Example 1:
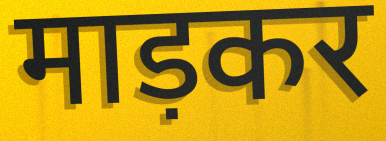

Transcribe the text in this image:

माड़कर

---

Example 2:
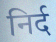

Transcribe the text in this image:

निर्द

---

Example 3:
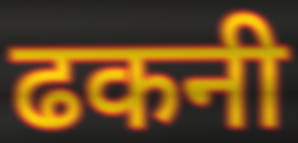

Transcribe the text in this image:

ढकनी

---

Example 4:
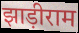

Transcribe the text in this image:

झाड़ीराम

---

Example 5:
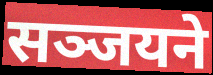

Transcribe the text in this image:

सञ्जयने